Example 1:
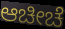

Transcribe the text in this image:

ಆಚೀಚೆ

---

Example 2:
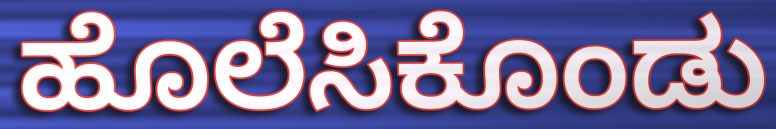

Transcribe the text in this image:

ಹೊಲೆಸಿಕೊಂಡು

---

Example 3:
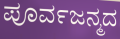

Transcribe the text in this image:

ಪೂರ್ವಜನ್ಮದ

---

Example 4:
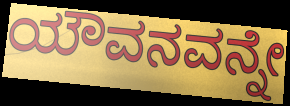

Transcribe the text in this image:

ಯೌವನವನ್ನೇ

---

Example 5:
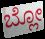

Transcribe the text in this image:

ಬ್ಲೋ